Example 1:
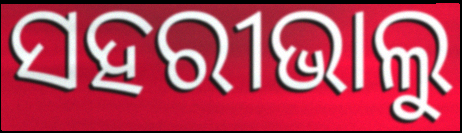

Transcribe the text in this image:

ସହରୀଭାଲୁ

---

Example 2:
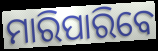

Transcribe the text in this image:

ମାରିପାରିବେ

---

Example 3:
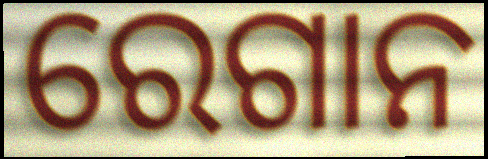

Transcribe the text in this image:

ରେଗାନ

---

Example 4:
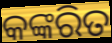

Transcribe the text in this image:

କଙ୍କରିତ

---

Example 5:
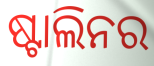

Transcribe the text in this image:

ଷ୍ଟାଲିନର